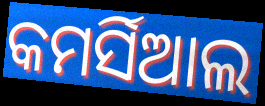
କମର୍ସିଆଲ